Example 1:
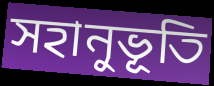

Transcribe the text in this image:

সহানুভূতি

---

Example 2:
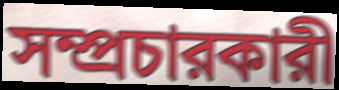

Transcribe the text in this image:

সম্প্রচারকারী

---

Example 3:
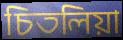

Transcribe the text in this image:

চিতলিয়া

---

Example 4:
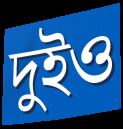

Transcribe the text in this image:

দুইও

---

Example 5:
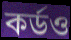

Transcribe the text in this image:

কর্ডও